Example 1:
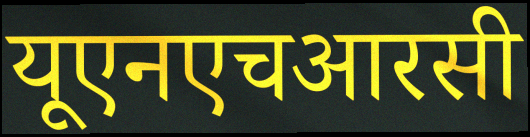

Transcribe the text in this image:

यूएनएचआरसी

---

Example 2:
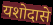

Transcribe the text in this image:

यशोदासे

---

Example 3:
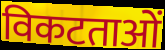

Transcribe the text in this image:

विकटताओं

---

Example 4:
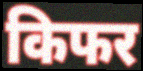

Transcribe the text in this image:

किफर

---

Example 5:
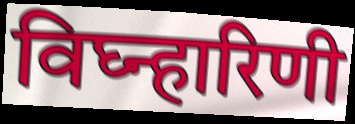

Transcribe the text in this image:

विघ्न्हारिणी